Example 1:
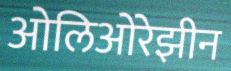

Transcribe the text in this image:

ओलिओरेझीन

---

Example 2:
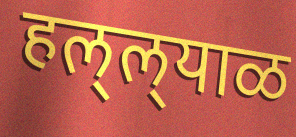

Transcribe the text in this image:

हल्ल्याळ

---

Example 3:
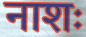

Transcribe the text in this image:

नाशः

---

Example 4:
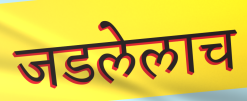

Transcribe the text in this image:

जडलेलाच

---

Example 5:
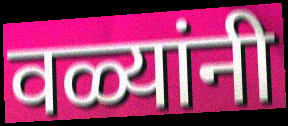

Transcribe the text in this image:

वळ्यांनी